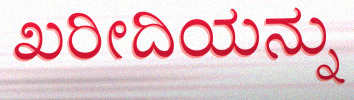
ಖರೀದಿಯನ್ನು